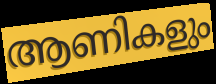
ആണികളും